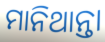
ମାନିଥାନ୍ତା